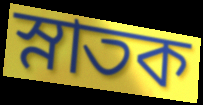
স্নাতক